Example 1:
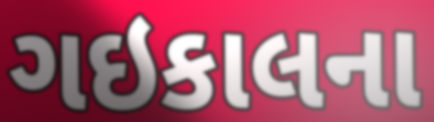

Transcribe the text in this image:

ગઇકાલના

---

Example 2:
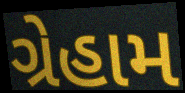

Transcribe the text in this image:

ગ્રેહામ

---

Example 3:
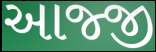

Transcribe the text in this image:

આજ્જી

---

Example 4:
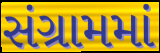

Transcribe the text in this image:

સંગ્રામમાં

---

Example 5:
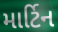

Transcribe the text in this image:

માર્ટિન